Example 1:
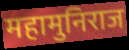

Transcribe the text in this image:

महामुनिराज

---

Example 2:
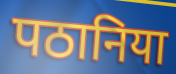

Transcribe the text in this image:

पठानिया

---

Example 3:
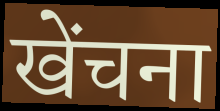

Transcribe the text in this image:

खेंचना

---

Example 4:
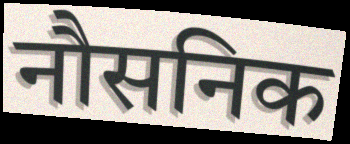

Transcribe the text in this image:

नौसनिक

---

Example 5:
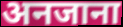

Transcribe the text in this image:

अनजाना